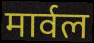
मार्वल